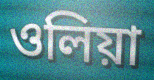
ওলিয়া